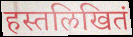
हस्तलिखितं